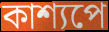
কাশ্যপে